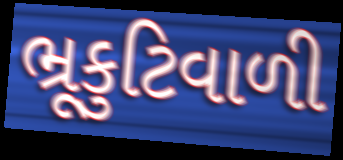
ભ્રૂકુટિવાળી